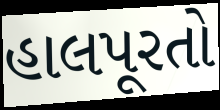
હાલપૂરતો